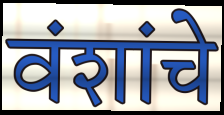
वंशांचे